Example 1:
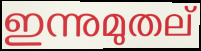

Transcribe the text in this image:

ഇന്നുമുതല്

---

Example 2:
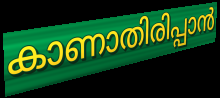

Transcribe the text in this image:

കാണാതിരിപ്പാൻ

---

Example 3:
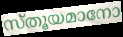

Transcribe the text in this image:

സ്തൂയമാനോ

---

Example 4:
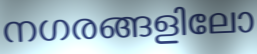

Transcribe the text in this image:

നഗരങ്ങളിലോ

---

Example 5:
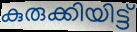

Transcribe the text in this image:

കുരുക്കിയിട്ട്